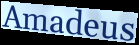
Amadeus